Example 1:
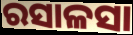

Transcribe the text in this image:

ରସାଳସା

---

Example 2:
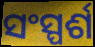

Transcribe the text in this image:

ସଂସ୍ପର୍ଶ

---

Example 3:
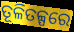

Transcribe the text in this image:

ତୂଳିତଳ୍ପରେ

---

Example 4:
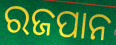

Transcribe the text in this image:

ରଜପାନ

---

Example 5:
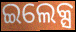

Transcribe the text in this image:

ଇଲେକ୍ସ